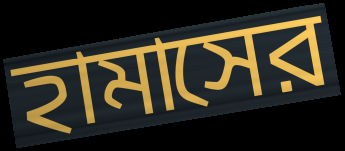
হামাসের